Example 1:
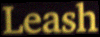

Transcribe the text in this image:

Leash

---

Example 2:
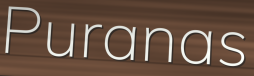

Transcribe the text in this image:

Puranas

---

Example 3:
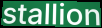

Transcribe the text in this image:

stallion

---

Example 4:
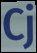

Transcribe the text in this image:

Cj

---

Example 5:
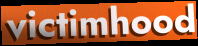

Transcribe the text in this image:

victimhood